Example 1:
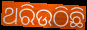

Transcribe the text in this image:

ଥରିଉଠିଛି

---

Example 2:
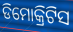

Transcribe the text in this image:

ଡିମୋକ୍ରିଟିସ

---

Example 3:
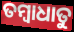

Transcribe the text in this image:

ତମ୍ବାଧାତୁ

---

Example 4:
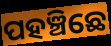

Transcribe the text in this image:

ପହଞ୍ଚିଛେ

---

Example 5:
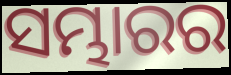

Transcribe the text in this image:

ସମ୍ଭାରର